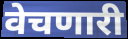
वेचणारी